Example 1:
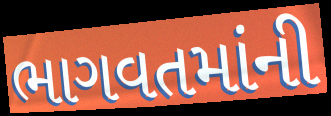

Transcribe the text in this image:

ભાગવતમાંની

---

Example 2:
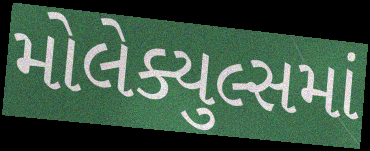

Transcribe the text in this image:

મોલેક્યુલ્સમાં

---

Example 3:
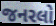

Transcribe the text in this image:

જનરલો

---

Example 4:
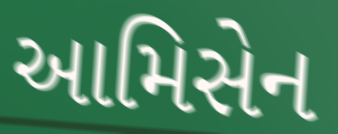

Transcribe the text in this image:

આમિસેન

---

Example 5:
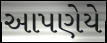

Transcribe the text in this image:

આપણેયે